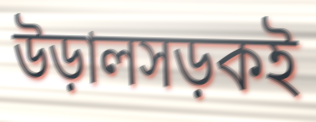
উড়ালসড়কই